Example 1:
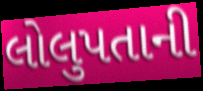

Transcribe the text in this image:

લોલુપતાની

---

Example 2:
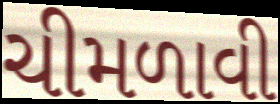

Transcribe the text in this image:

ચીમળાવી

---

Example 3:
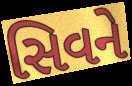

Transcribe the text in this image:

સિવને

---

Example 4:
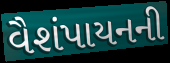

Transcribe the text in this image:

વૈશંપાયનની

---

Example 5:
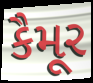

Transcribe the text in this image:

કૈમૂર